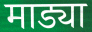
माड्या